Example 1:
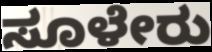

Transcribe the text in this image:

ಸೂಳೇರು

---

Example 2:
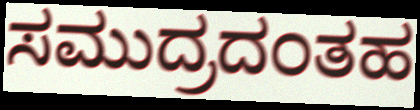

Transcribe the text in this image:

ಸಮುದ್ರದಂತಹ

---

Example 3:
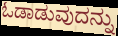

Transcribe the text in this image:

ಓಡಾಡುವುದನ್ನು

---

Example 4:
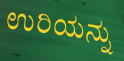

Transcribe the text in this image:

ಉರಿಯನ್ನು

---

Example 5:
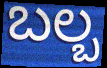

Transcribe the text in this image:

ಬಲ್ಬ